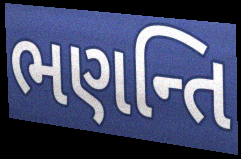
ભણન્તિ